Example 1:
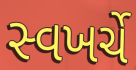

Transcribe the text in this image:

સ્વખર્ચે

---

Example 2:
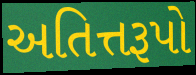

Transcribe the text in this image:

અતિત્તરૂપો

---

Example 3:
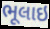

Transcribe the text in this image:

ભૂલાઇ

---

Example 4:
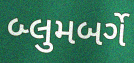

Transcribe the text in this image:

બ્લુમબર્ગે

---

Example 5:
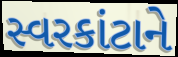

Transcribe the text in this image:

સ્વરકાંટાને